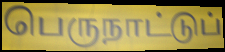
பெருநாட்டுப்